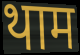
थाम